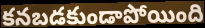
కనబడకుండాపోయింది